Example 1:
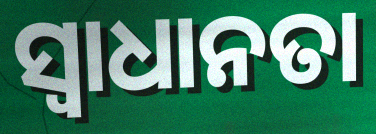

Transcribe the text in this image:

ସ୍ୱାଧାନତା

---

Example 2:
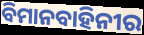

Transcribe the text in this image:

ବିମାନବାହିନୀର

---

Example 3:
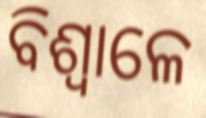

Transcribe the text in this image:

ବିଶ୍ଵାଳେ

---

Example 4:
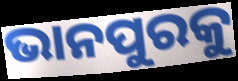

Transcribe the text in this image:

ଭାନପୁରକୁ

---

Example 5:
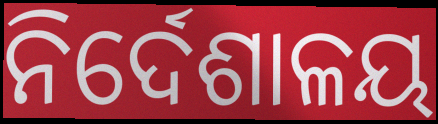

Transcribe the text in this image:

ନିର୍ଦେଶାଳୟ